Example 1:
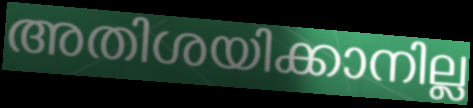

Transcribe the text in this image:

അതിശയിക്കാനില്ല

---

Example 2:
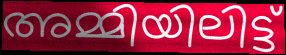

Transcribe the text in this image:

അമ്മിയിലിട്ട്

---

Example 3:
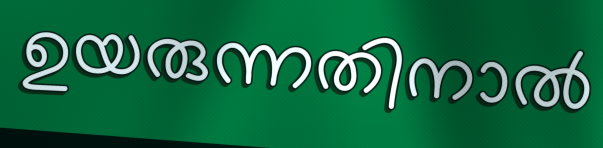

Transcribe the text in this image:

ഉയരുന്നതിനാൽ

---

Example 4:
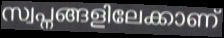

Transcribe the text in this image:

സ്വപ്നങ്ങളിലേക്കാണ്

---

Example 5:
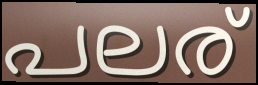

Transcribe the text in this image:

പലര്